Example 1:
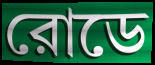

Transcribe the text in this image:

রোডে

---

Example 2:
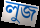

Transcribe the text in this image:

লুজ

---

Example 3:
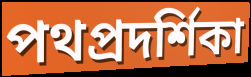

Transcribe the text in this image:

পথপ্রদর্শিকা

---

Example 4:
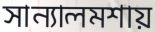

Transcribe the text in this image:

সান্যালমশায়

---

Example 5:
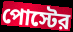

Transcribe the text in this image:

পোস্টের